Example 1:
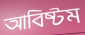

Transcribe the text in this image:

আবিষ্টম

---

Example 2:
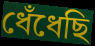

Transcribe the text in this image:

ধেঁধেছি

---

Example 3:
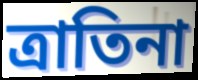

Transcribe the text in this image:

ত্রাতিনা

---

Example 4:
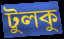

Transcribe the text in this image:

টুলকু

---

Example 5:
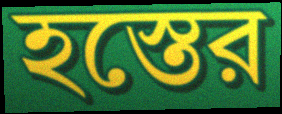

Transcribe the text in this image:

হস্তের